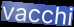
vacchi